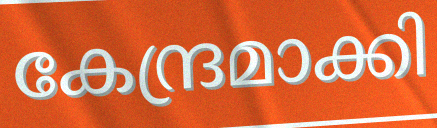
കേന്ദ്രമാക്കി